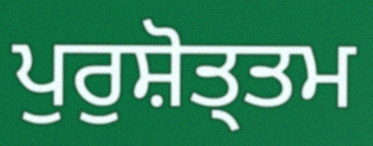
ਪੁਰੁਸ਼ੋਤ੍ਤਮ